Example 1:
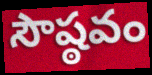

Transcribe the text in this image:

సౌష్ఠవం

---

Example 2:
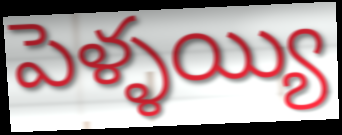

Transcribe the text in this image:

పెళ్ళయ్యి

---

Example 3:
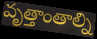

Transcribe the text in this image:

వృత్తాంతాల్ని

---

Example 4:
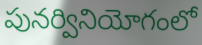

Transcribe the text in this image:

పునర్వినియోగంలో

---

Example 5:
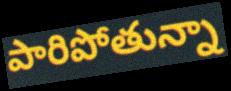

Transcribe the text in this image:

పారిపోతున్నా